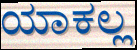
ಯಾಕಲ್ಲ